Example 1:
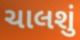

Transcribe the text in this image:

ચાલશું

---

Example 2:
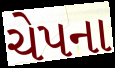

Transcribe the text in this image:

ચેપના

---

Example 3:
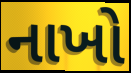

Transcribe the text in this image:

નાખો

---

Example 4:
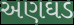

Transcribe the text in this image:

અણઘડ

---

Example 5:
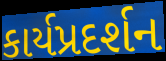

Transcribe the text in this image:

કાર્યપ્રદર્શન